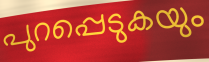
പുറപ്പെടുകയും